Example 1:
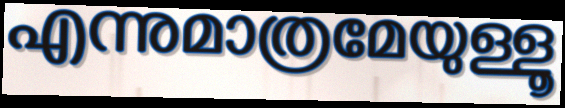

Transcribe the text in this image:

എന്നുമാത്രമേയുള്ളൂ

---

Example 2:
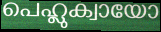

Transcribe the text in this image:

പെഹ്ലുക്വായോ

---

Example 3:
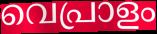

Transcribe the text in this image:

വെപ്രാളം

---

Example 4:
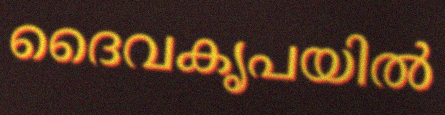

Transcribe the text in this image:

ദൈവകൃപയിൽ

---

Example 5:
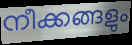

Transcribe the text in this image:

നീക്കങ്ങളും